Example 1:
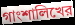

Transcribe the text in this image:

গাংশালিখের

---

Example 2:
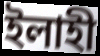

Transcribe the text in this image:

ইলাহী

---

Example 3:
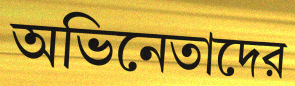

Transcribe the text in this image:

অভিনেতাদের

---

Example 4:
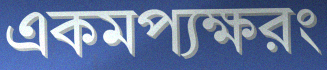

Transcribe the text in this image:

একমপ্যক্ষরং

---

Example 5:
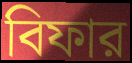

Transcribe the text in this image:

বিফার